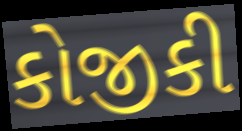
કોજીકી